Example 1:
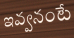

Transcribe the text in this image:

ఇవ్వనంటే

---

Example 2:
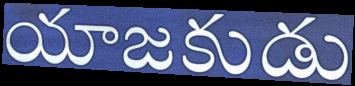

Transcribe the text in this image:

యాజకుడు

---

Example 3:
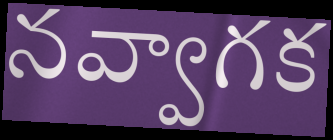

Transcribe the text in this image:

నవ్వాగక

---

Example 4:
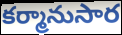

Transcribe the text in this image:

కర్మానుసార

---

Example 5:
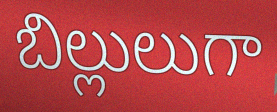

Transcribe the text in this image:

బిల్లులుగా